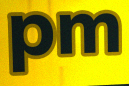
pm